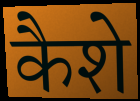
कैशे